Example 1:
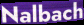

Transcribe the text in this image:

Nalbach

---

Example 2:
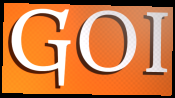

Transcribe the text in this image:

GOI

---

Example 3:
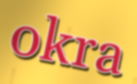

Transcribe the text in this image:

okra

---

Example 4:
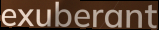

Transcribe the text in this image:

exuberant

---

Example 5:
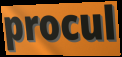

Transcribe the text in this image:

procul